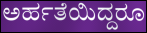
ಅರ್ಹತೆಯಿದ್ದರೂ